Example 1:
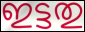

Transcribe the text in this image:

ഇട്ടതു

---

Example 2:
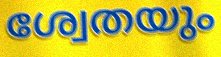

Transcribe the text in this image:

ശ്വേതയും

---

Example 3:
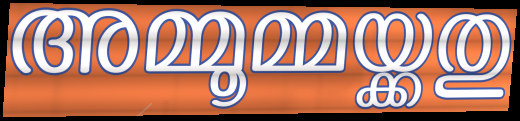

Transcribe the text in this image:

അമ്മൂമ്മയ്ക്കതു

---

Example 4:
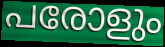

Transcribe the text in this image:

പരോളും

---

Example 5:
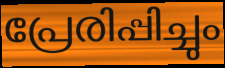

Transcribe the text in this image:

പ്രേരിപ്പിച്ചും